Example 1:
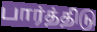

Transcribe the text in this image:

பார்த்திடு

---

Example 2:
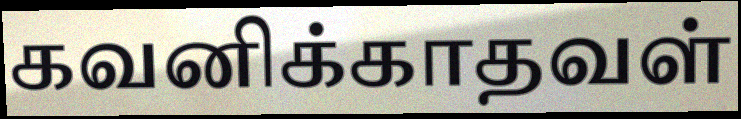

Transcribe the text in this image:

கவனிக்காதவள்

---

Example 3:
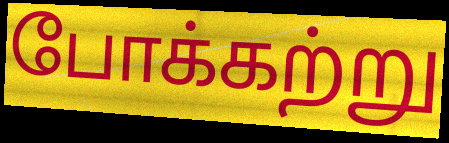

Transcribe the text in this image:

போக்கற்று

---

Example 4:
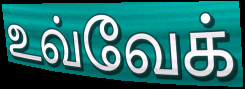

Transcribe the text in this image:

உவ்வேக்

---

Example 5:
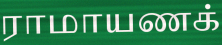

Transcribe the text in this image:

ராமாயணக்